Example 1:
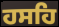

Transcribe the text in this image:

ਹਸਹਿ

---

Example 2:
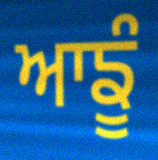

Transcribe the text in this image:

ਆਙੂੰ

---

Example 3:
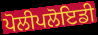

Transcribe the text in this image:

ਪੋਲੀਪਲੋਇਡੀ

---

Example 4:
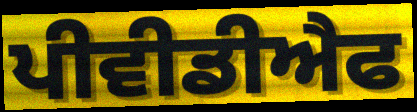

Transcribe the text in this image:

ਪੀਵੀਡੀਐਫ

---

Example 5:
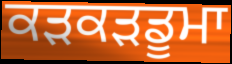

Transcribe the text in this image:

ਕੜਕੜਡੂਮਾ